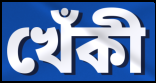
খেঁকী